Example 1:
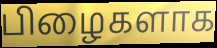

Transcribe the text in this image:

பிழைகளாக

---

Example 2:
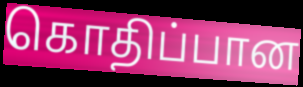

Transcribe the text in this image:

கொதிப்பான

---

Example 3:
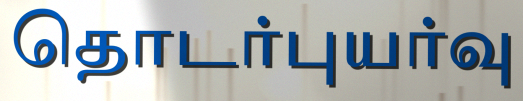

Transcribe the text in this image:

தொடர்புயர்வு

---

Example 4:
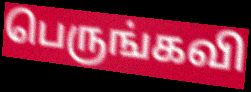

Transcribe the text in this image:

பெருங்கவி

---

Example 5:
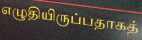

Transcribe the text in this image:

எழுதியிருப்பதாகத்